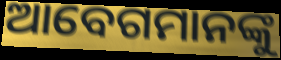
ଆବେଗମାନଙ୍କୁ